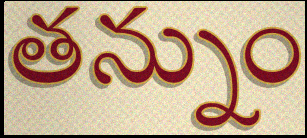
తన్నుం